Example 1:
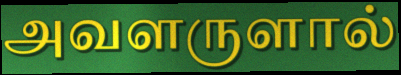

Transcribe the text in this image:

அவளருளால்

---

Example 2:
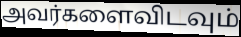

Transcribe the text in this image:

அவர்களைவிடவும்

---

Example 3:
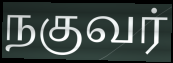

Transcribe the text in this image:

நகுவர்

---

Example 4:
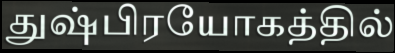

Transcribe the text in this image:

துஷ்பிரயோகத்தில்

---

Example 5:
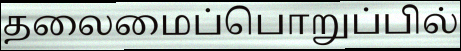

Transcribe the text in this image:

தலைமைப்பொறுப்பில்